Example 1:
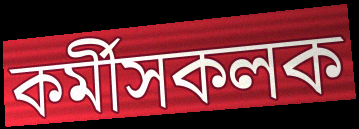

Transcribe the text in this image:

কৰ্মীসকলক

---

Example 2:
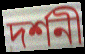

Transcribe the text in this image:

দৰ্শনী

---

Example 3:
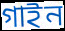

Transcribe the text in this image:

গাইন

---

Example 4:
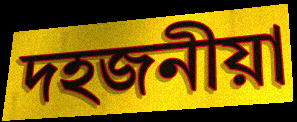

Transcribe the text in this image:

দহজনীয়া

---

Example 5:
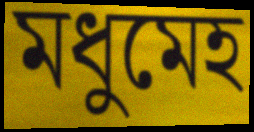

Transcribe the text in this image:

মধুমেহ